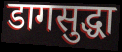
डागसुद्धा